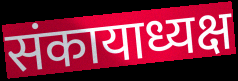
संकायाध्यक्ष